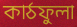
কাঠফুলা